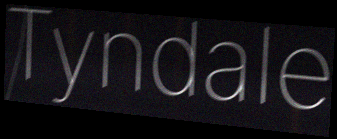
Tyndale